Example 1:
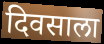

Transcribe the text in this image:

दिवसाला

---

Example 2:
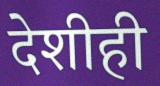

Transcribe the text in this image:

देशीही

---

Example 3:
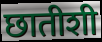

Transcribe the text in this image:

छातीशी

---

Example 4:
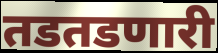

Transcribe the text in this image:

तडतडणारी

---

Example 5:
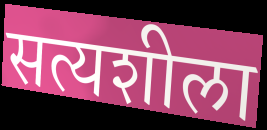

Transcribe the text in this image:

सत्यशीला